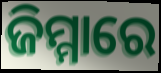
ଜିମ୍ମାରେ